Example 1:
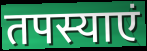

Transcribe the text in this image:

तपस्याएं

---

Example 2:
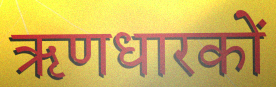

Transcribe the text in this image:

ऋणधारकों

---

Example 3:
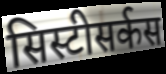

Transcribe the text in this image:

सिस्टीसर्कस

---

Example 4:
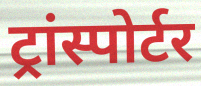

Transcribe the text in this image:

ट्रांस्पोर्टर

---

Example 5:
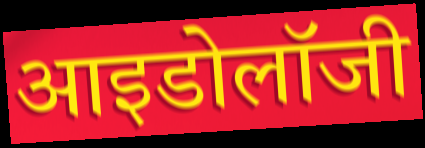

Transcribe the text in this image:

आइडोलॉजी